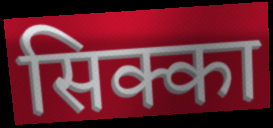
सिक्‍का